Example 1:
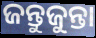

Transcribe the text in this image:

ଜନ୍ତୁଜୁନ୍ତା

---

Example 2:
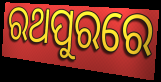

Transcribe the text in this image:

ରଥପୁରରେ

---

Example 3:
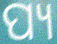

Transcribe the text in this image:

ପ୍ୟ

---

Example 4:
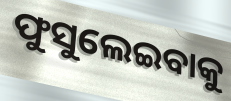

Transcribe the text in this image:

ଫୁସୁଲେଇବାକୁ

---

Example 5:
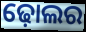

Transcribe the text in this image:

ଢ଼ୋଲର